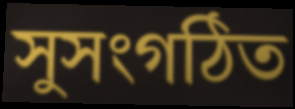
সুসংগঠিত